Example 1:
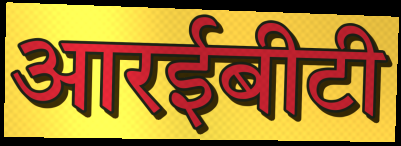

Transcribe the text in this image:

आरईबीटी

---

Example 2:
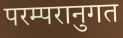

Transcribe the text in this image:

परम्परानुगत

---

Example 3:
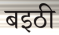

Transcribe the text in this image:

बइठी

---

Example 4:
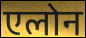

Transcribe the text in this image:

एलोन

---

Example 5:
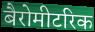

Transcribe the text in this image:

बैरोमीटरिक